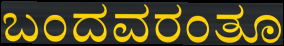
ಬಂದವರಂತೂ